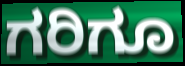
ಗರಿಗೂ